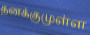
தனக்குமுள்ள